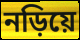
নড়িয়ে